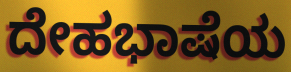
ದೇಹಭಾಷೆಯ